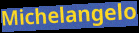
Michelangelo